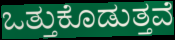
ಒತ್ತುಕೊಡುತ್ತವೆ